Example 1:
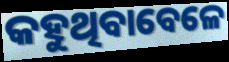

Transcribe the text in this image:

କହୁଥିବାବେଳେ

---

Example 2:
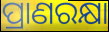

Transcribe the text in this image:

ପ୍ରାଣରକ୍ଷା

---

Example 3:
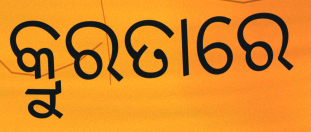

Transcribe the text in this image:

କ୍ରୁରତାରେ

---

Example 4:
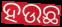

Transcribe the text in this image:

ହଉଛ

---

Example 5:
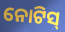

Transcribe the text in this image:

ନୋଟିସ୍